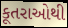
કૂતરાઓથી